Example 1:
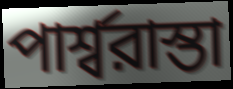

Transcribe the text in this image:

পার্শ্বরাস্তা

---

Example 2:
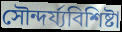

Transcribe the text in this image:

সৌন্দর্য্যবিশিষ্টা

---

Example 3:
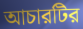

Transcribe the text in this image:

আচারটির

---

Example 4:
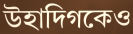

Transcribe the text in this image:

উহাদিগকেও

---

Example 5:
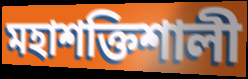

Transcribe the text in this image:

মহাশক্তিশালী